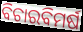
ବିଚାରବିମର୍ଷ